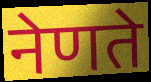
नेणते